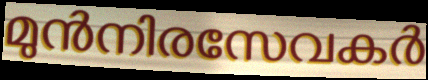
മുൻനിരസേവകർ